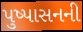
પુષ્પાસનની